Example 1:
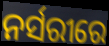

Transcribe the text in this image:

ନର୍ସରୀରେ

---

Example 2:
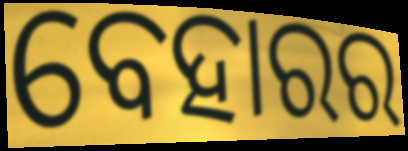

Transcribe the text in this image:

ବେହାରର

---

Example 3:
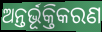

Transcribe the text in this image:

ଅନ୍ତର୍ଭୂକ୍ତିକରଣ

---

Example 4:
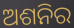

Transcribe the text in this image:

ଅଶନିର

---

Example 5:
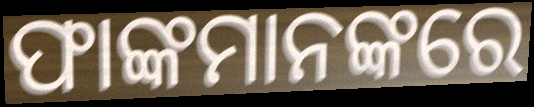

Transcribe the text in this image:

ଫାଙ୍କମାନଙ୍କରେ